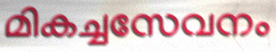
മികച്ചസേവനം